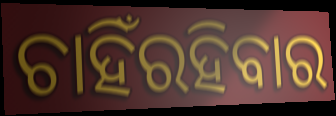
ଚାହିଁରହିବାର